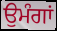
ਉਮੰਗਾਂ